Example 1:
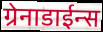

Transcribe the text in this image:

ग्रेनाडाईन्स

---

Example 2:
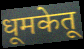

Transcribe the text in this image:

धूमकेतू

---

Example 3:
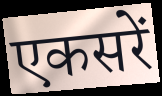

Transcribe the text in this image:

एकसरें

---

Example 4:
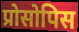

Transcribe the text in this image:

प्रोसोपिस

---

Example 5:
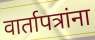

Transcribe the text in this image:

वार्तापत्रांना